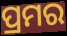
ପ୍ରମର